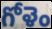
గోళెం